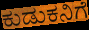
ಕುಡುಕನಿಗೆ